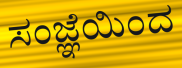
ಸಂಜ್ಞೆಯಿಂದ